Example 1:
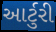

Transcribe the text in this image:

આર્ટુરી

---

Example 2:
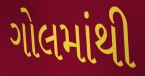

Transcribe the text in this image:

ગોલમાંથી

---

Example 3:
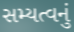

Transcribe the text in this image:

સમ્યત્વનું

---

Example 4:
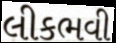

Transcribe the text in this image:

લીકભવી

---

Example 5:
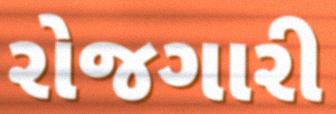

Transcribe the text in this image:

રોજગારી